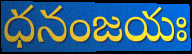
ధనంజయః